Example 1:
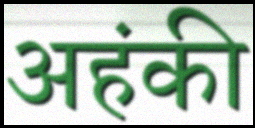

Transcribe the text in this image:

अहंकी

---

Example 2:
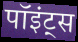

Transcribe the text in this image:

पॉइंट्स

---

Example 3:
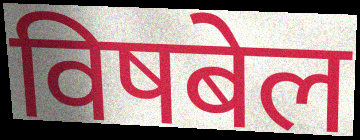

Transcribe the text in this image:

विषबेल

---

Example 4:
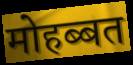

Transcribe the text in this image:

मोहब्बत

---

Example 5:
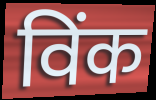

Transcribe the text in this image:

विंक